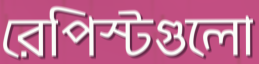
রেপিস্টগুলো